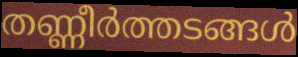
തണ്ണീർത്തടങ്ങൾ